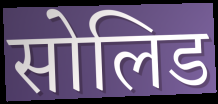
सोलिड